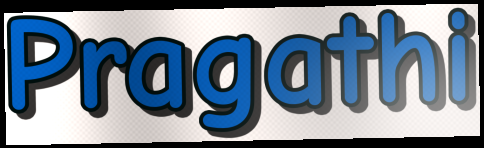
Pragathi